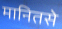
मानितसे